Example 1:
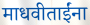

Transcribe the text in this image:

माधवीताईंना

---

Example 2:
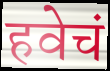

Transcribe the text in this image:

हवेचं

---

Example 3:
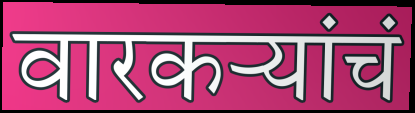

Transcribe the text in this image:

वारकऱ्यांचं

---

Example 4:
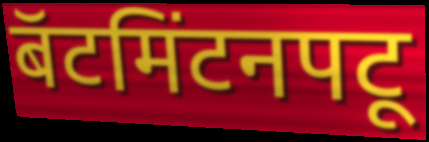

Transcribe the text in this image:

बॅटमिंटनपटू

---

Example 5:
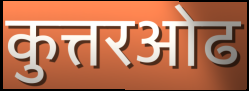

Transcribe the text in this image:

कुत्तरओढ